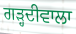
ਗਡ਼੍ਹਦੀਵਾਲਾ